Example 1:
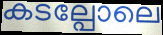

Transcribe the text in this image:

കടല്പോലെ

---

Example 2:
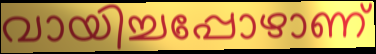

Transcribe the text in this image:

വായിച്ചപ്പോഴാണ്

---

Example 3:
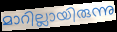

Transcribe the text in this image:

മാറില്ലായിരുന്നു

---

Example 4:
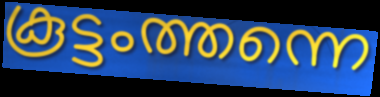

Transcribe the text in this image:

കൂട്ടംത്തന്നെ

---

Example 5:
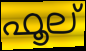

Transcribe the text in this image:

ഫൂല്